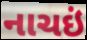
નાચઇં